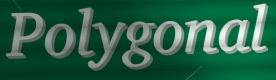
Polygonal